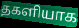
தகளியாக